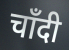
चाँदी